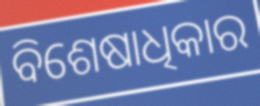
ବିଶେଷାଧିକାର